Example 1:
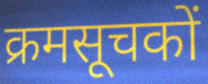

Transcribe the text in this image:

क्रमसूचकों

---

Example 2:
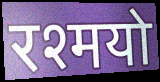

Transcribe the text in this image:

रश्मयो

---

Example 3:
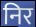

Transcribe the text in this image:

निर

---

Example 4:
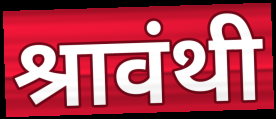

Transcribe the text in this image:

श्रावंथी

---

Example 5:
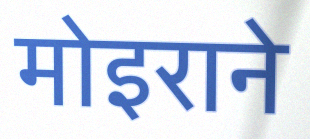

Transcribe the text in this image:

मोइराने